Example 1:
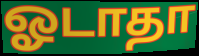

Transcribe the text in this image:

ஓடாதா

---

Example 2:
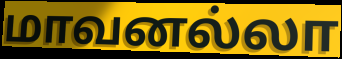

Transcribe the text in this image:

மாவனல்லா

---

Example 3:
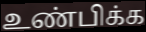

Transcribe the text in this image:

உண்பிக்க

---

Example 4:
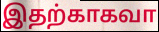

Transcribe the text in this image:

இதற்காகவா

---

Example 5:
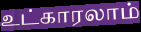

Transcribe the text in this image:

உட்காரலாம்